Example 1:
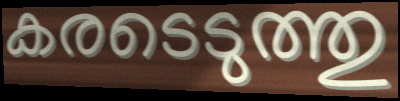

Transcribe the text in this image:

കരടെടുത്തു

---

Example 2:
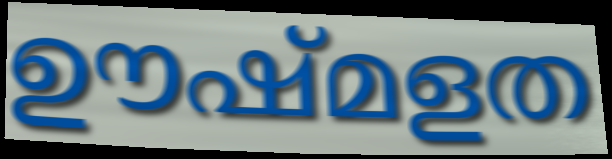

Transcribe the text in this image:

ഊഷ്മളത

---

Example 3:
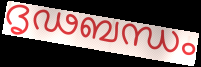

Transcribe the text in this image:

ദൃഢബന്ധം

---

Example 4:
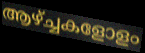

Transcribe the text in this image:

ആഴ്ച്ചകളോളം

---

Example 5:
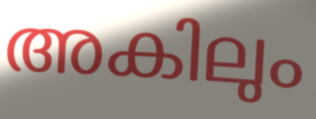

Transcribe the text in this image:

അകിലും